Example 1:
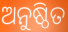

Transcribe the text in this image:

ଅନୁଷ୍ଠିତ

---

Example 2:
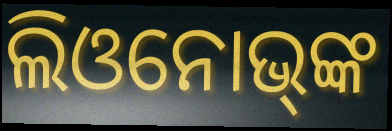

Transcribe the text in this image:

ଲିଓନୋଭ୍‌ଙ୍କ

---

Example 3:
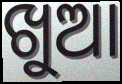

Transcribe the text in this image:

ଖୁଆ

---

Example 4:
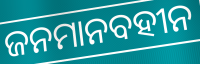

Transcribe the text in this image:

ଜନମାନବହୀନ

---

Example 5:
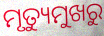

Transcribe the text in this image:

ମୃତ୍ୟୁମୁଖରୁ